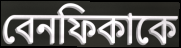
বেনফিকাকে